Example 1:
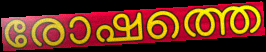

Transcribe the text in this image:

രോഷത്തെ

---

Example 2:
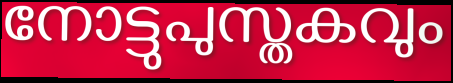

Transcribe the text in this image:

നോട്ടുപുസ്തകവും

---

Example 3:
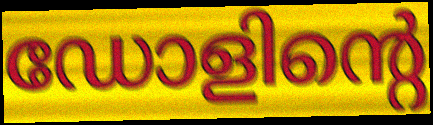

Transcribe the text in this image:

ഡോളിന്റെ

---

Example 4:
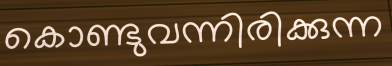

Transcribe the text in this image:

കൊണ്ടുവന്നിരിക്കുന്ന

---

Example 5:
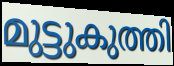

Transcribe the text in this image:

മുട്ടുകുത്തി